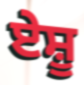
ਏਸ਼ੂ